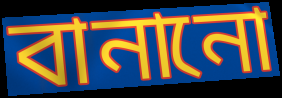
বানানো